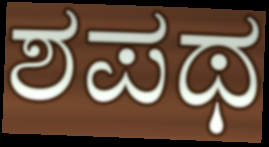
ಶಪಥ